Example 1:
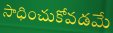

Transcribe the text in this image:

సాధించుకోవడమే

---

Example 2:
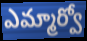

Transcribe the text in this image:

ఎమ్మార్వో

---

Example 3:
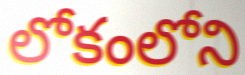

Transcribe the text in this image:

లోకంలోని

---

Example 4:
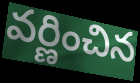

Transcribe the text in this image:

వర్ణించిన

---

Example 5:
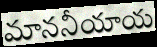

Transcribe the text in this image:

మాననీయాయ